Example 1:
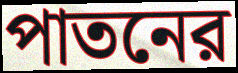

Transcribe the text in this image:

পাতনের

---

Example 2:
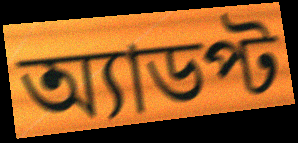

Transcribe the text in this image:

অ্যাডপ্ট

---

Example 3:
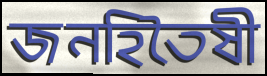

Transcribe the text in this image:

জনহিতৈষী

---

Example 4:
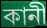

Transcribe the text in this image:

কানী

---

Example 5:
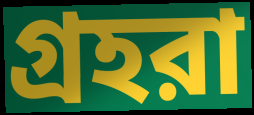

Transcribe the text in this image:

গ্রহরা